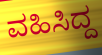
ವಹಿಸಿದ್ದ